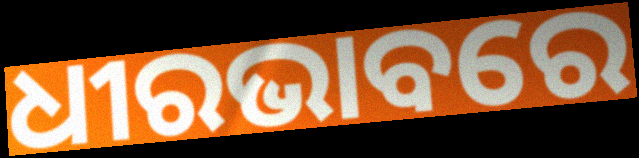
ଧୀରଭାବରେ